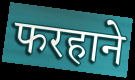
फरहाने